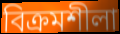
বিক্ৰমশীলা